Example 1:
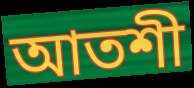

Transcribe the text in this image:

আতশী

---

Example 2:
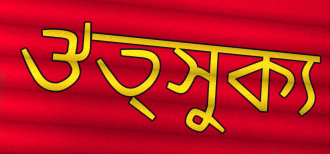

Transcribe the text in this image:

ঔত্সুক্য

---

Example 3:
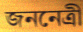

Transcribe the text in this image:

জননেত্রী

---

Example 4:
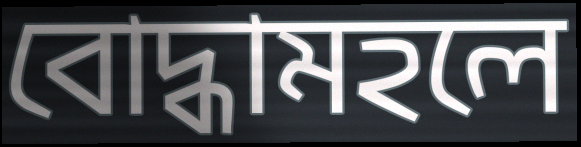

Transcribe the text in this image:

বোদ্ধামহলে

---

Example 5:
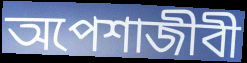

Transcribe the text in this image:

অপেশাজীবী